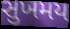
સુખમય